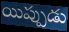
యిప్పుడు